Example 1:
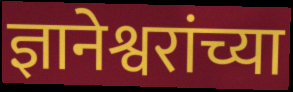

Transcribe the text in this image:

ज्ञानेश्वरांच्या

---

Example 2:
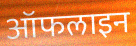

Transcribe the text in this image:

ऑफलाइन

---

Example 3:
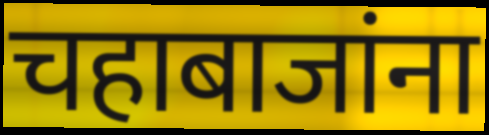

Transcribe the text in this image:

चहाबाजांना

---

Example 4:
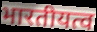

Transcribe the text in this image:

भारतीयत्व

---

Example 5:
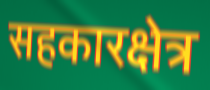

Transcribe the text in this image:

सहकारक्षेत्र